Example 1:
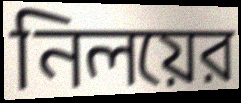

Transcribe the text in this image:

নিলয়ের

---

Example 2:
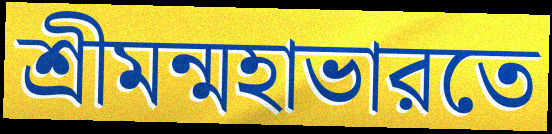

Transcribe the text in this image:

শ্রীমন্মহাভারতে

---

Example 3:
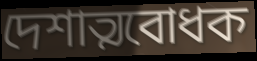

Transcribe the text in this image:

দেশাত্মবোধক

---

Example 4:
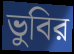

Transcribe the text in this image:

ভুবির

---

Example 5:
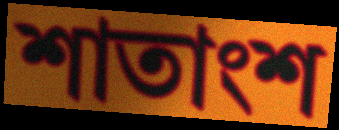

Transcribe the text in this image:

শাতাংশ